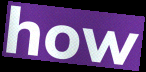
how